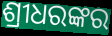
ଶ୍ରୀଧରଙ୍କର